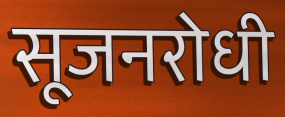
सूजनरोधी